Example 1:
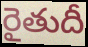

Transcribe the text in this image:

రైతుదీ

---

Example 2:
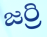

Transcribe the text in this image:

జర్రి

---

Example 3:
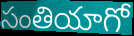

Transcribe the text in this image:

సంతియాగో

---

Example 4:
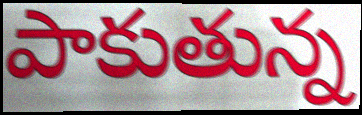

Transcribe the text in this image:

పాకుతున్న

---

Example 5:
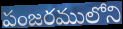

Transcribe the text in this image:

పంజరములోని